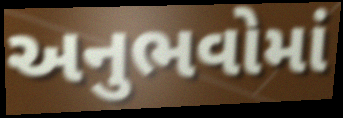
અનુભવોમાં